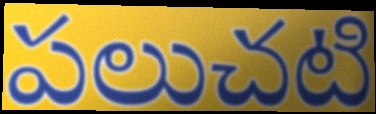
పలుచటి